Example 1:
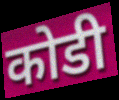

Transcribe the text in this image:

कोडी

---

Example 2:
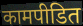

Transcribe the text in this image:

कामपीडित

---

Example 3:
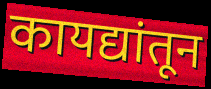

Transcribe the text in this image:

कायद्यांतून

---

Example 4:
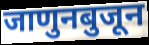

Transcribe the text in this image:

जाणुनबुजून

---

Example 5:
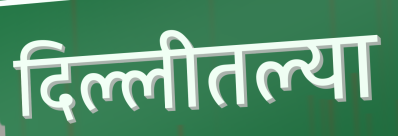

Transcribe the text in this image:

दिल्लीतल्या